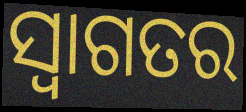
ସ୍ଵାଗତର